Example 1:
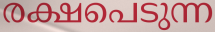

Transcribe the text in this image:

രക്ഷപെടുന്ന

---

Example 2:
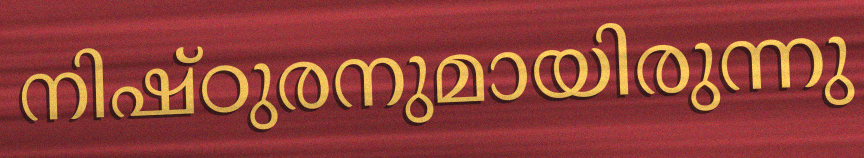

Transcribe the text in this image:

നിഷ്ഠുരനുമായിരുന്നു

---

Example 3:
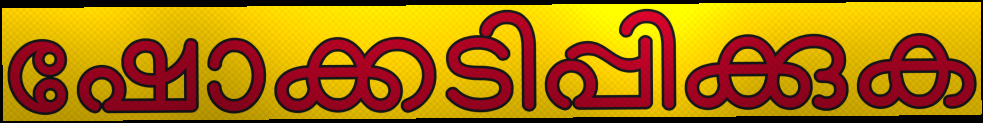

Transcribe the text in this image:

ഷോക്കടിപ്പിക്കുക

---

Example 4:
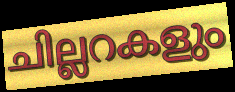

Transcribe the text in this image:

ചില്ലറകളും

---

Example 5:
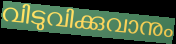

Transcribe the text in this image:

വിടുവിക്കുവാനും